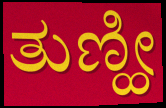
ತುಣ್ಹೀ